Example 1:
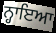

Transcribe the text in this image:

ਨ੍ਹ੍ਹਾਇਆ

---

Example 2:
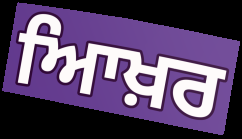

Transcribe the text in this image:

ਆਿਖ਼ਰ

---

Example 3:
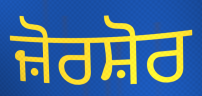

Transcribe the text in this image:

ਜ਼ੋਰਸ਼ੋਰ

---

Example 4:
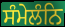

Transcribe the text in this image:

ਸੰਮੇਲੰਨਿ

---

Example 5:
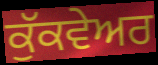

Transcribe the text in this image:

ਕੁੱਕਵੇਅਰ